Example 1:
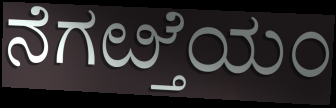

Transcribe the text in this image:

ನೆಗೞ್ತೆಯಂ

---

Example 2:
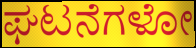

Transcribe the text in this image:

ಘಟನೆಗಳೋ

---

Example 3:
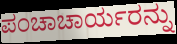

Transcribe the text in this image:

ಪಂಚಾಚಾರ್ಯರನ್ನು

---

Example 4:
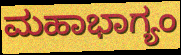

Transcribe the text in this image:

ಮಹಾಭಾಗ್ಯಂ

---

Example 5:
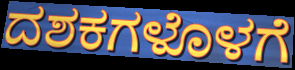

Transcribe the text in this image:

ದಶಕಗಳೊಳಗೆ